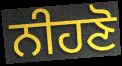
ਨੀਹਣੋ